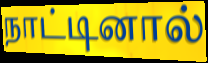
நாட்டினால்